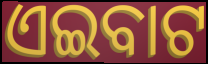
ଏଇବାଟ